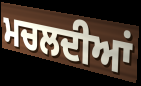
ਮਚਲਦੀਆਂ